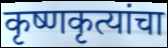
कृष्णकृत्यांचा